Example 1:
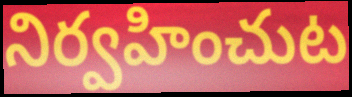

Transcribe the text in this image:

నిర్వహించుట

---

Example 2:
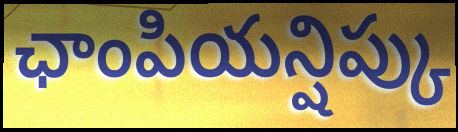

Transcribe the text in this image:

ఛాంపియన్షిప్కు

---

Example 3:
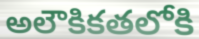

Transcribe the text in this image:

అలౌకికతలోకి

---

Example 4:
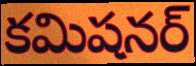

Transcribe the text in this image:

కమిషనర్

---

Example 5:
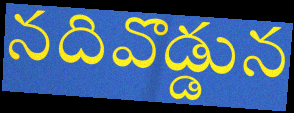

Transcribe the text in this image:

నదివొడ్డున